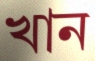
খান